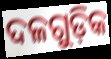
ଦଳଗୁଡ଼ିକ